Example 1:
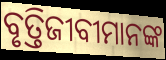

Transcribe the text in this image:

ବୃତ୍ତିଜୀବୀମାନଙ୍କ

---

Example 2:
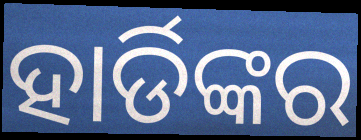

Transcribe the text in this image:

ହାର୍ଡିଙ୍କର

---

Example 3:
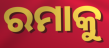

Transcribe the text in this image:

ରମାକୁ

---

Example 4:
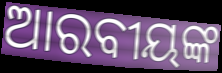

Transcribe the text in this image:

ଆରବୀୟଙ୍କ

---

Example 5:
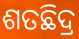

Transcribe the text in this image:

ଶତଛିଦ୍ର